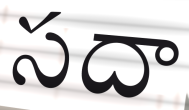
సదా